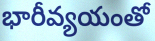
భారీవ్యయంతో